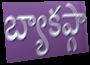
బ్యాకప్గా